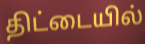
திட்டையில்